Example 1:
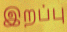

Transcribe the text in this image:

இறப்பு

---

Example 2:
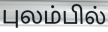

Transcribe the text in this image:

புலம்பில்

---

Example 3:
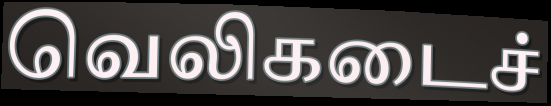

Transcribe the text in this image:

வெலிகடைச்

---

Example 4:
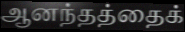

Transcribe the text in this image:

ஆனந்தத்தைக்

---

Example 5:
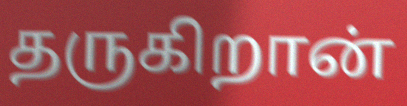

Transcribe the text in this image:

தருகிறான்